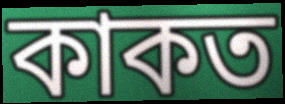
কাকত